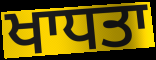
ਖਾਧਤਾ